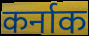
कर्नाक